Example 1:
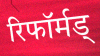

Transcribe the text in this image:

रिफॉर्मड्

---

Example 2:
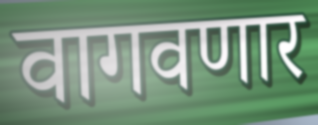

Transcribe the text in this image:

वागवणार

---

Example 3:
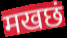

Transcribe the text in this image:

मखछं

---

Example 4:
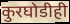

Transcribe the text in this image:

कुरघोडीही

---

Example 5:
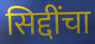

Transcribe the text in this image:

सिद्दींचा